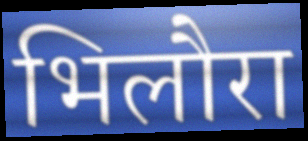
भिलौरा